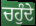
ਚਹੁੰਦੇ